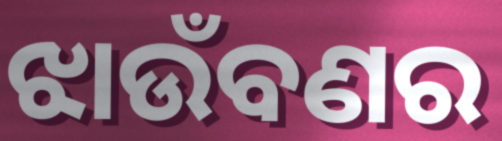
ଝାଉଁବଣର